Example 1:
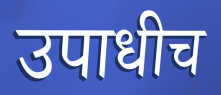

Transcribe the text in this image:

उपाधीच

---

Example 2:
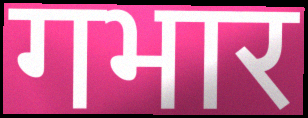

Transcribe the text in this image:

गभार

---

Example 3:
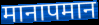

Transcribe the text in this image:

मानापमान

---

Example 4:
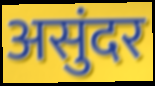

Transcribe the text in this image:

असुंदर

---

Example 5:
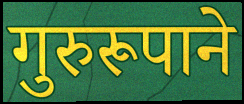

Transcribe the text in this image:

गुरुरूपाने